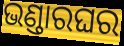
ଭଣ୍ଡାରଘର